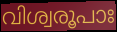
വിശ്വരൂപാഃ